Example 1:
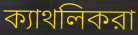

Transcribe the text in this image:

ক্যাথলিকরা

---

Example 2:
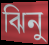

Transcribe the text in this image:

ঝিনু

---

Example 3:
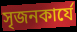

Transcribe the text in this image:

সৃজনকার্যে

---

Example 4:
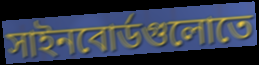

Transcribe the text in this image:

সাইনবোর্ডগুলোতে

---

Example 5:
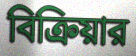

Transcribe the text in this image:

বিক্রিয়ার